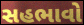
સહભાવો